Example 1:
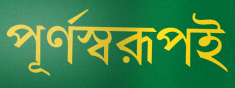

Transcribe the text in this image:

পূর্ণস্বরূপই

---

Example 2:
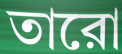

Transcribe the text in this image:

তারো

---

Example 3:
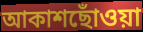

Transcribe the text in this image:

আকাশছোঁওয়া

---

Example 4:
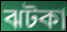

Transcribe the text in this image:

ঝটকা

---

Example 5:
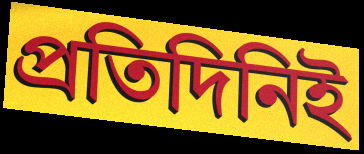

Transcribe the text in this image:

প্রতিদিনিই